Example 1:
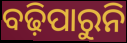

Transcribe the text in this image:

ବଢ଼ିପାରୁନି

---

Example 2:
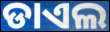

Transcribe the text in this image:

ଡାଏଲ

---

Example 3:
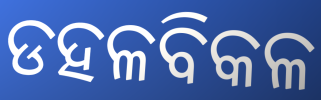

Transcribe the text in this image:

ଡହଳବିକଳ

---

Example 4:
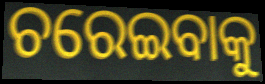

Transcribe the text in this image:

ଚରେଇବାକୁ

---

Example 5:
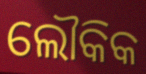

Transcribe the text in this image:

ଲୌକିକ